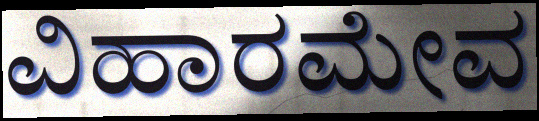
ವಿಹಾರಮೇವ